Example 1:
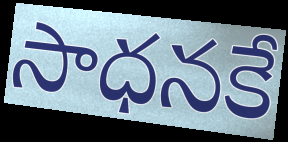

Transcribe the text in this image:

సాధనకే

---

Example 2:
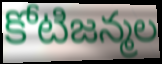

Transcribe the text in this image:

కోటిజన్మల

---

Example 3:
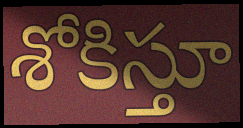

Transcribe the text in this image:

శోకిస్తూ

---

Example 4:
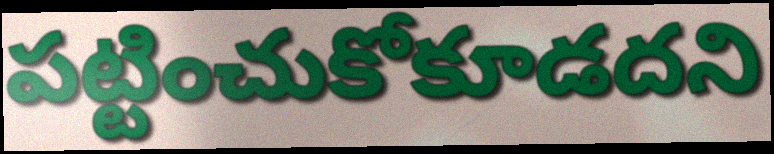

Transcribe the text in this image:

పట్టించుకోకూడదని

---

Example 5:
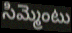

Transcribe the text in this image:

సిమ్మెంటు